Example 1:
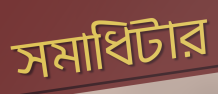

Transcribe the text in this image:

সমাধিটার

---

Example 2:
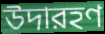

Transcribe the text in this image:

উদারহণ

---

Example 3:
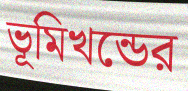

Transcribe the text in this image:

ভূমিখন্ডের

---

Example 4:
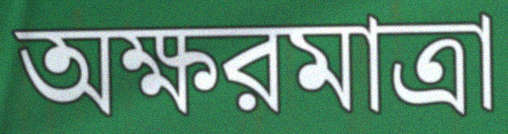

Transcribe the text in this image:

অক্ষরমাত্রা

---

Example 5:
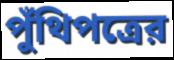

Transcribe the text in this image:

পুঁথিপত্রের